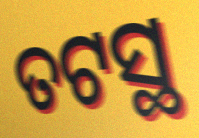
ତଟସ୍ଥ